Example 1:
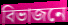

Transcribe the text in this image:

বিভাজনে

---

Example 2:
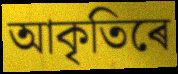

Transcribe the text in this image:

আকৃতিৰে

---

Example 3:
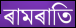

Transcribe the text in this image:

ৰামৰাতি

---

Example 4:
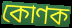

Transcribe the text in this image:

কোণক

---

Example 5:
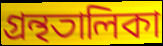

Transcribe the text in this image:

গ্ৰন্থতালিকা